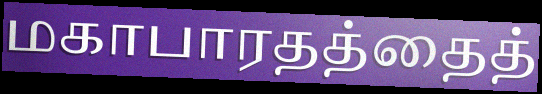
மகாபாரதத்தைத்